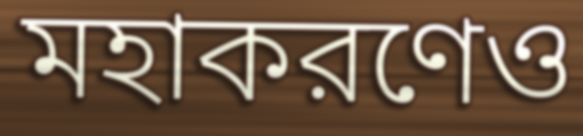
মহাকরণেও